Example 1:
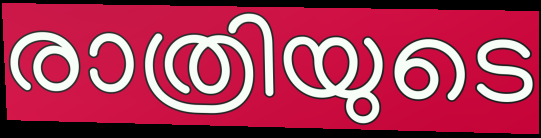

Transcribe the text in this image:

രാത്രിയുടെ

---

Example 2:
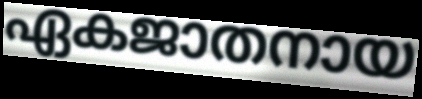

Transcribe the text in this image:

ഏകജാതനായ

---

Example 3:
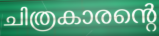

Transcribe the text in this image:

ചിത്രകാരന്റെ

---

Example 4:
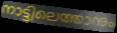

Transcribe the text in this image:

നാട്ടിലെത്താനും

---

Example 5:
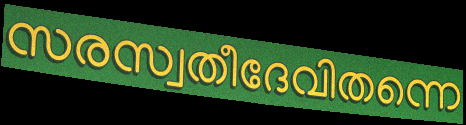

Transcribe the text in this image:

സരസ്വതീദേവിതന്നെ